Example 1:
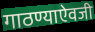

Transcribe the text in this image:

गाठण्याऐवजी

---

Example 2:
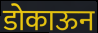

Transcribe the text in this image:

डोकाऊन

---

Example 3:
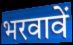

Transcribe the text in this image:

भरवावें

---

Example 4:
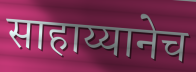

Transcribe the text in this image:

साहाय्यानेच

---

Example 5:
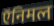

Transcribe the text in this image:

ऍनिमल